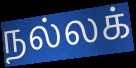
நல்லக்